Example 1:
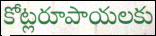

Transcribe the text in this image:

కోట్లరూపాయలకు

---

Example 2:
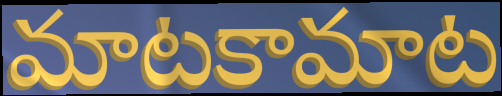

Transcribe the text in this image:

మాటకామాట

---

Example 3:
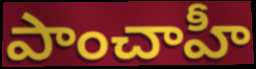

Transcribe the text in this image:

పాంచాహీ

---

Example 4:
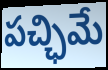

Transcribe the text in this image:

పచ్ఛిమే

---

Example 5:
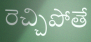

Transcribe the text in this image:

రెచ్చిపోతే